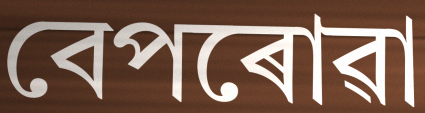
বেপৰোৱা